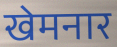
खेमनार